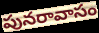
పునరావాసం